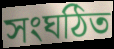
সংঘঠিত